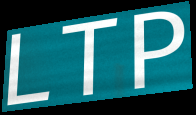
LTP